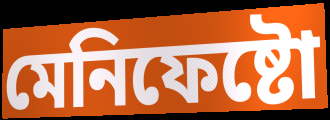
মেনিফেষ্টো